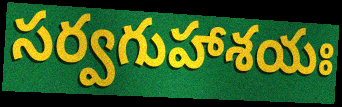
సర్వగుహాశయః